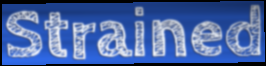
Strained